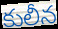
కులీన